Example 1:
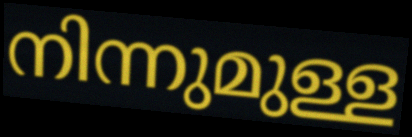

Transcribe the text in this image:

നിന്നുമുള്ള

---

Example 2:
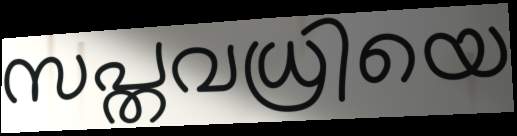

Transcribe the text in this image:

സപ്തവധ്രിയെ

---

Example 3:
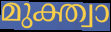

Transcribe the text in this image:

മുക്ത്വാ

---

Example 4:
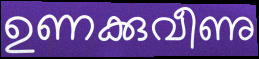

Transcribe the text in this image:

ഉണക്കുവീണു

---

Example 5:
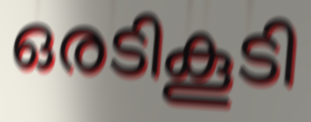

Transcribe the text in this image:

ഒരടികൂടി